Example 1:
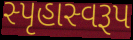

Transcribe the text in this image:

સ્પૃહાસ્વરૂપ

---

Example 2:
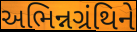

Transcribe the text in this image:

અભિન્નગ્રંથિને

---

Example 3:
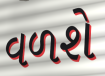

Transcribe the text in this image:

વળશે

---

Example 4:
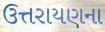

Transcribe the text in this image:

ઉત્તરાયણના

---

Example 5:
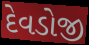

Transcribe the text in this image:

દેવડોજી